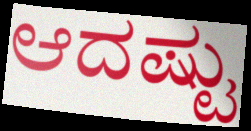
ಆದಷ್ಟು